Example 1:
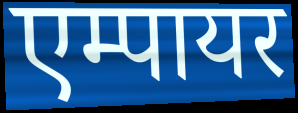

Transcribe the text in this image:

एम्पायर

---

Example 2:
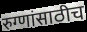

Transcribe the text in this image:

रुग्णांसाठीच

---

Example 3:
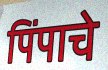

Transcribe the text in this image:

पिंपाचे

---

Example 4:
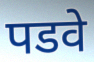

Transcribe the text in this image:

पडवे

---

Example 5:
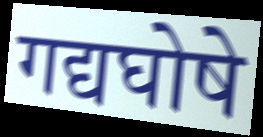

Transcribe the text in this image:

गद्यघोषे